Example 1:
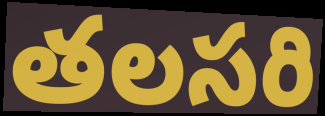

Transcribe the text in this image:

తలసరి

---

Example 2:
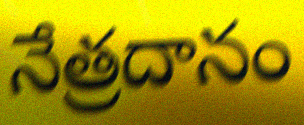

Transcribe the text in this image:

నేత్రదానం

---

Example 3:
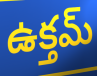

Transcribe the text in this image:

ఉక్తమ్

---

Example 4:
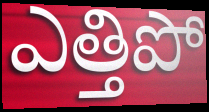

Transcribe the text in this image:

ఎత్తిపో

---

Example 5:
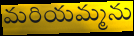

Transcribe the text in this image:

మరియమ్మను